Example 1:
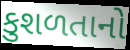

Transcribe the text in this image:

કુશળતાનો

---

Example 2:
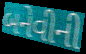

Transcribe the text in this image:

બનેવીની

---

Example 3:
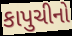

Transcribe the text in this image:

કાપુચીનો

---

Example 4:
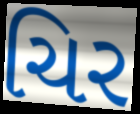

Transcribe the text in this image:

ચિર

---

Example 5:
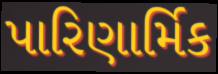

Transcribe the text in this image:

પારિણાર્મિક